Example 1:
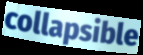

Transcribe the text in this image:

collapsible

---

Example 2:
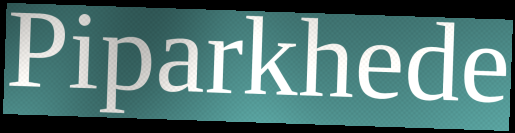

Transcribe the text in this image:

Piparkhede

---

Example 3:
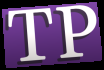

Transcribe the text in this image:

TP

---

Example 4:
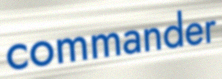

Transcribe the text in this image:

commander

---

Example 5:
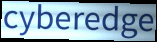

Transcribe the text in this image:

cyberedge